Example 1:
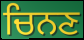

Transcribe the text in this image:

ਚਿਨਣ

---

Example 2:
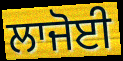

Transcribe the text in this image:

ਲਾਜੋਈ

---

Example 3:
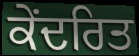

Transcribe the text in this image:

ਕੇਂਦਰਿਤ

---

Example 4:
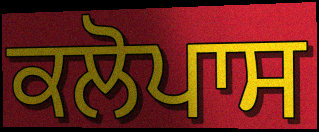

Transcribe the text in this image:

ਕਲੋਪਾਸ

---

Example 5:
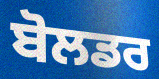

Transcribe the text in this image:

ਬੋਲਡਰ